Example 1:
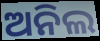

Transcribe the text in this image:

ଅନିଲ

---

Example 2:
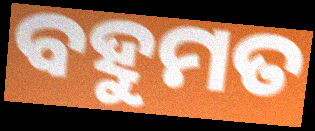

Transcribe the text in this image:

ବହୁମତ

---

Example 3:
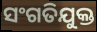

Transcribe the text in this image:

ସଂଗତିଯୁକ୍ତ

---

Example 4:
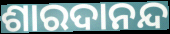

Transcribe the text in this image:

ଶାରଦାନନ୍ଦ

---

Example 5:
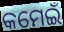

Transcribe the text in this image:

କମେଇଁ